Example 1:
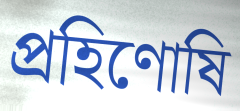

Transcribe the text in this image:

প্রহিণোষি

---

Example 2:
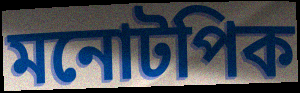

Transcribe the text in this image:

মনোটপিক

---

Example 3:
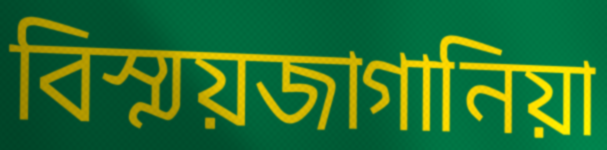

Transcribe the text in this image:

বিস্ময়জাগানিয়া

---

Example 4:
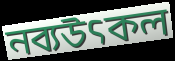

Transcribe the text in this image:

নব্যউৎকল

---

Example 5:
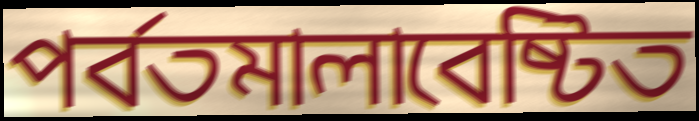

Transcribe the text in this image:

পর্বতমালাবেষ্টিত